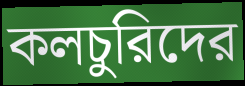
কলচুরিদের